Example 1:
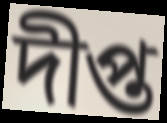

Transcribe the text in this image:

দীপ্ত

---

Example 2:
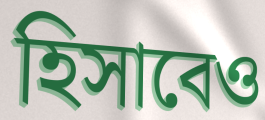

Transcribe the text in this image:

হিসাবেও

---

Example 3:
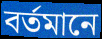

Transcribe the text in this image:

বৰ্তমানে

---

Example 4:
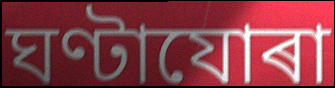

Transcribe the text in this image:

ঘণ্টাযোৰা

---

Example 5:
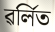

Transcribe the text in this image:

ৱৰ্লিত